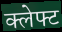
क्लेफ्ट